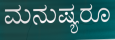
ಮನುಷ್ಯರೂ